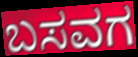
ಬಸವಗ